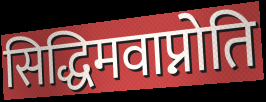
सिद्धिमवाप्नोति